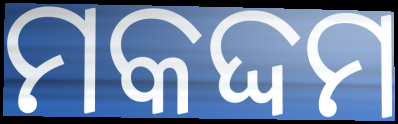
ମକଦ୍ଦମ